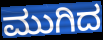
ಮುಗಿದ